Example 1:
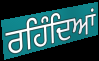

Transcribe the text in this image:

ਰਹਿੰਦਿਆਂ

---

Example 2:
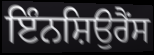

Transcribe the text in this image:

ਇੰਨਸ਼ਿਉਰੈਂਸ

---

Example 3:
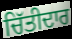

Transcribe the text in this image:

ਚਿੱਤੀਦਾਰ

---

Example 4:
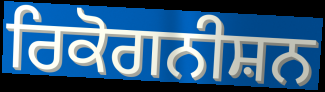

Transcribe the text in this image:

ਰਿਕੋਗਨੀਸ਼ਨ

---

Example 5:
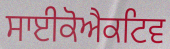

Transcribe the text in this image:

ਸਾਈਕੋਐਕਟਿਵ